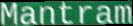
Mantram